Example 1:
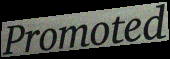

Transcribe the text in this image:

Promoted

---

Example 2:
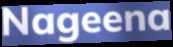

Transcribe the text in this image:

Nageena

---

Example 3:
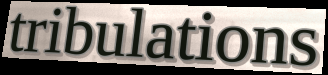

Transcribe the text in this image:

tribulations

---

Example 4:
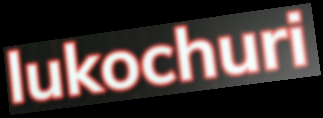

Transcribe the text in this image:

lukochuri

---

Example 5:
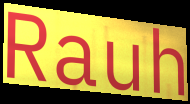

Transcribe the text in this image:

Rauh